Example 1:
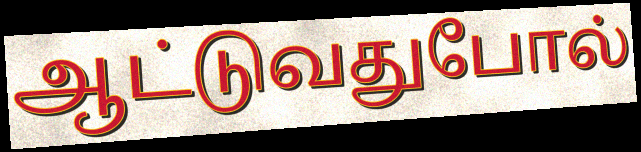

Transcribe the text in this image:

ஆட்டுவதுபோல்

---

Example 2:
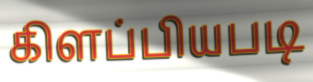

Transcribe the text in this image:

கிளப்பியபடி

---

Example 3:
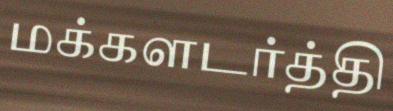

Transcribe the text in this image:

மக்களடர்த்தி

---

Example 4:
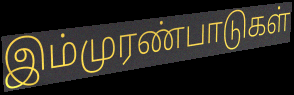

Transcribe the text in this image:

இம்முரண்பாடுகள்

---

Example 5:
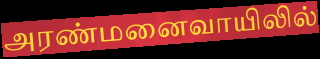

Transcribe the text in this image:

அரண்மனைவாயிலில்